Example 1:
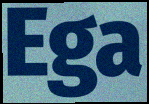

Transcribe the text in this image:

Ega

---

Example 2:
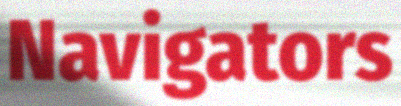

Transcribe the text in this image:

Navigators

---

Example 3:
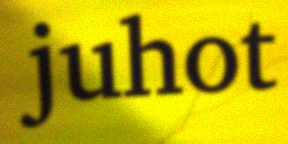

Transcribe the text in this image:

juhot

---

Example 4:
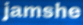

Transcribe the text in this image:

jamshe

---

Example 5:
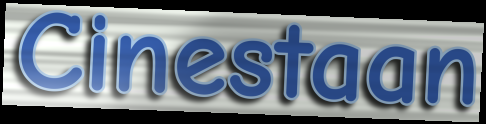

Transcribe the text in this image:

Cinestaan